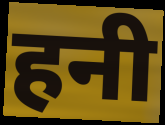
हनी